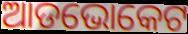
ଆଡଭୋକେଟ